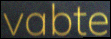
vabte